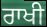
ਰਾਖੀ